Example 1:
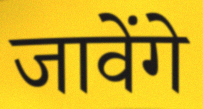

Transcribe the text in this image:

जावेंगे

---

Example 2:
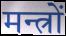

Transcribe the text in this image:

मन्त्रों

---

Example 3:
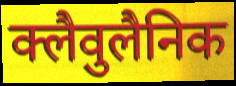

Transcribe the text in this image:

क्लैवुलैनिक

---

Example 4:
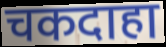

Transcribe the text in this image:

चकदाहा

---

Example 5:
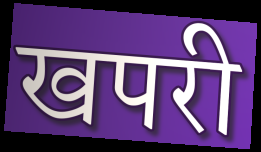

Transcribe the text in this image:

खपरी